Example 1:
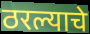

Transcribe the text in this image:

ठरल्याचे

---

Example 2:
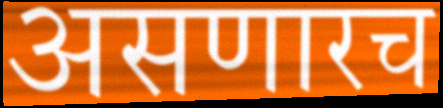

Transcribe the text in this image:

असणारच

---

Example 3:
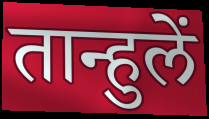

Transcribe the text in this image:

तान्हुलें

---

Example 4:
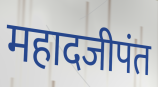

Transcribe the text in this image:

महादजीपंत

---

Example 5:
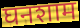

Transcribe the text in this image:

घनशाम